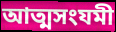
আত্মসংযমী